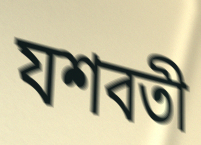
যশবতী